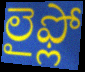
లైఫ్లో